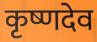
कृष्‍णदेव